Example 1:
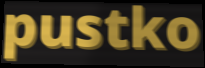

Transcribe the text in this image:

pustko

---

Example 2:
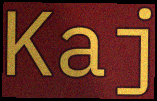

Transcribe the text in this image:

Kaj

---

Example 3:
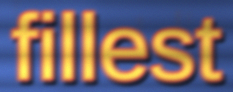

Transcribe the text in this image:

fillest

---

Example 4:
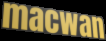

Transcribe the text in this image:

macwan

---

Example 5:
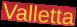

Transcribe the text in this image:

Valletta